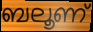
ബലൂണ്